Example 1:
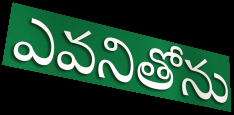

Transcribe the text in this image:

ఎవనితోను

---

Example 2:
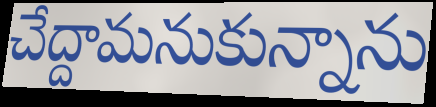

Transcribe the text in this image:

చేద్దామనుకున్నాను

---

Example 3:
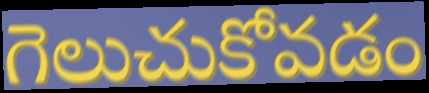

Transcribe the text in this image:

గెలుచుకోవడం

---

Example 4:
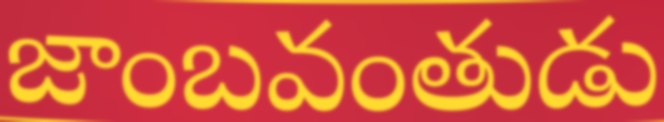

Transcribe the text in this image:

జాంబవంతుడు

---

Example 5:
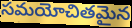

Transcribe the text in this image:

సమయోచితమైన